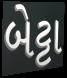
બેટ્ટા